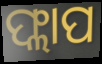
ଫ୍ଲାପ